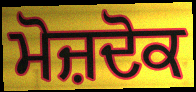
ਮੋਜ਼ਦੋਕ